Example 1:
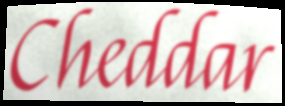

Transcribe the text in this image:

Cheddar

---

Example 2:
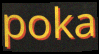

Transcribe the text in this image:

poka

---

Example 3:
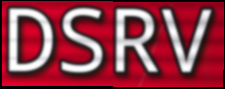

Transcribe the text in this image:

DSRV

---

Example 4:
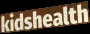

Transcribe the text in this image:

kidshealth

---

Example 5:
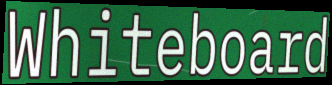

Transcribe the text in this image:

Whiteboard